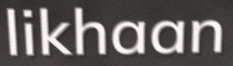
likhaan